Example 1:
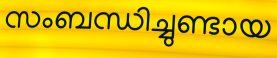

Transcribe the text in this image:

സംബന്ധിച്ചുണ്ടായ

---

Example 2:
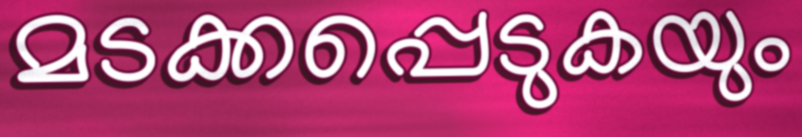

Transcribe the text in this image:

മടക്കപ്പെടുകയും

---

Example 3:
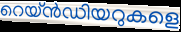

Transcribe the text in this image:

റെയ്ൻഡിയറുകളെ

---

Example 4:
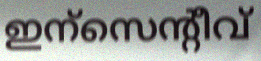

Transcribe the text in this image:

ഇന്സെന്റീവ്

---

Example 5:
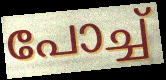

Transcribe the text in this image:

പോച്ച്